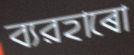
ব্যৱহাৰো